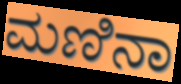
ಮಣಿನಾ